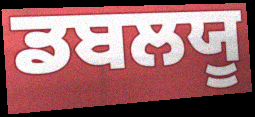
ਡਬਲਯੂ